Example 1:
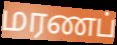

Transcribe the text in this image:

மரணப்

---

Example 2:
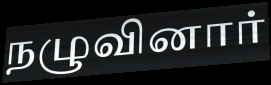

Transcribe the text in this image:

நழுவினார்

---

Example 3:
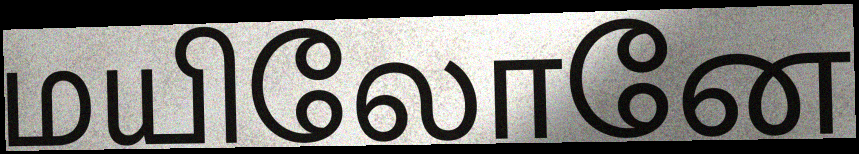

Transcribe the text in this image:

மயிலோனே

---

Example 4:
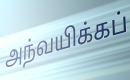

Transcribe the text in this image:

அந்வயிக்கப்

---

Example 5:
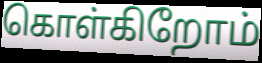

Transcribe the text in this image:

கொள்கிறோம்